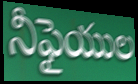
నీఫైయుల